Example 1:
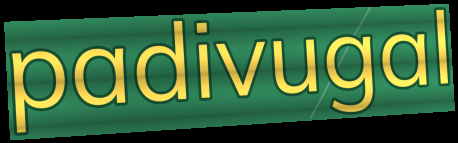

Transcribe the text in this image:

padivugal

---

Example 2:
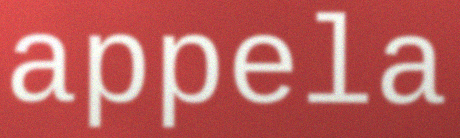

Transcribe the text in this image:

appela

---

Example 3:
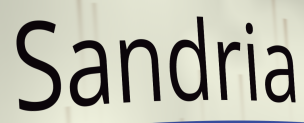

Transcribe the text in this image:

Sandria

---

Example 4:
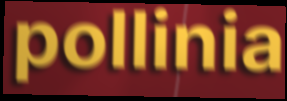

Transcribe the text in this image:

pollinia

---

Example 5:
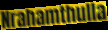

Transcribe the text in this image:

Nrahamthulla